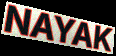
NAYAK